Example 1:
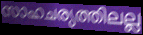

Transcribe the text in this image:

സാഹചര്യത്തിലല്ല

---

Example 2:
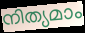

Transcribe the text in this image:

നിത്യമാം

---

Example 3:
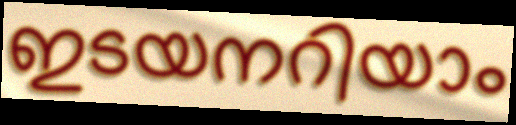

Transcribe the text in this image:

ഇടയനറിയാം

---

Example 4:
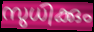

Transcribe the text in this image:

സുധിക്കും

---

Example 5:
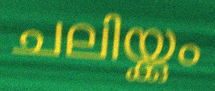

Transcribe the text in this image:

ചലിയ്ക്കും